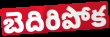
బెదిరిపోక